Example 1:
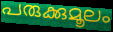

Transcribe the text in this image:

പരുക്കുമൂലം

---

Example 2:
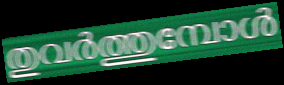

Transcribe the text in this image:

തുവർത്തുമ്പോൾ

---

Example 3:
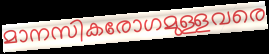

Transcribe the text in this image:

മാനസികരോഗമുള്ളവരെ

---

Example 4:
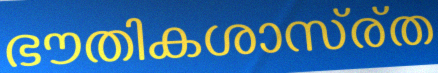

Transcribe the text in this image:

ഭൗതികശാസ്ര്ത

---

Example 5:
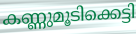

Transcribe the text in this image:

കണ്ണുമൂടിക്കെട്ടി